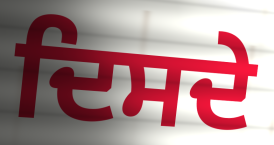
ਦਿਸਦੇ